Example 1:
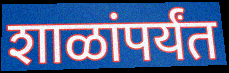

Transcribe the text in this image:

शाळांपर्यंत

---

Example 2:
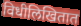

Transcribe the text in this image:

विधीलिखितात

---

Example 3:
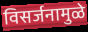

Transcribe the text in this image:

विसर्जनामुळे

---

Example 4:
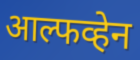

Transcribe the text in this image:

आल्फव्हेन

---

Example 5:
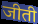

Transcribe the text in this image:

जीती